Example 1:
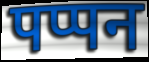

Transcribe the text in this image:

पप्पन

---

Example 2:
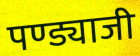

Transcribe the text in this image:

पण्ड्याजी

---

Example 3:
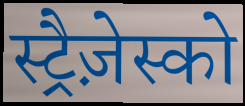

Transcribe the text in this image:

स्ट्रैज़ेस्को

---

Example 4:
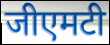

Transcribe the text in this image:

जीएमटी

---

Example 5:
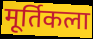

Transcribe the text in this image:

मूर्तिकला